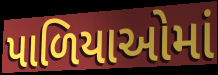
પાળિયાઓમાં